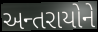
અન્તરાયોને